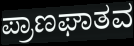
ಪ್ರಾಣಘಾತವ